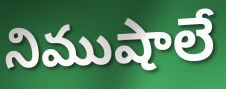
నిముషాలే